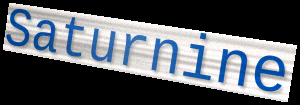
Saturnine